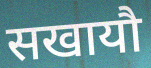
सखायौ